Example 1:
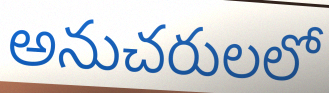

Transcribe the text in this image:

అనుచరులలో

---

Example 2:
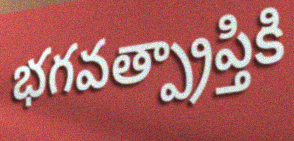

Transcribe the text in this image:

భగవత్ప్రాప్తికి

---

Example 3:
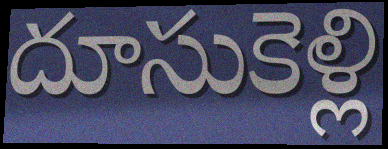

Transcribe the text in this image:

దూసుకెళ్లి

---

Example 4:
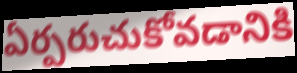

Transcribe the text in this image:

ఏర్పరుచుకోవడానికి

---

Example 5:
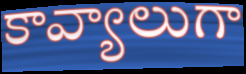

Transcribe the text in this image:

కావ్యాలుగా